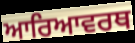
ਆਰਿਆਵਰਥ